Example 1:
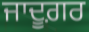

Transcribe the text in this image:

ਜਾਦੂਗ਼ਰ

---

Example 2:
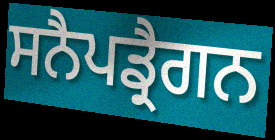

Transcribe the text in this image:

ਸਨੈਪਡ੍ਰੈਗਨ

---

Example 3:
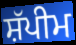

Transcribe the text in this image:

ਸ਼ੱਪੀਮ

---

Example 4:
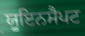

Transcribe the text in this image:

ਯੂਇਨਸੈਪਟ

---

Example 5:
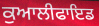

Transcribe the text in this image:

ਕੁਆਲੀਫਾਇਡ